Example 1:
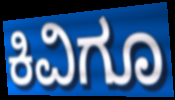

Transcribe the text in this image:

ಕಿವಿಗೂ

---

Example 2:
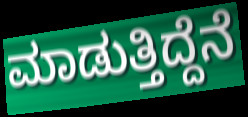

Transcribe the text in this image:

ಮಾಡುತ್ತಿದ್ದೆನೆ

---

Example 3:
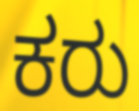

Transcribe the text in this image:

ಕರು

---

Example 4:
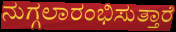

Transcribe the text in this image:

ನುಗ್ಗಲಾರಂಭಿಸುತ್ತಾರೆ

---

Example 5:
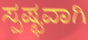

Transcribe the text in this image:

ಸ್ಪಷ್ಟವಾಗಿ